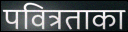
पवित्रताका